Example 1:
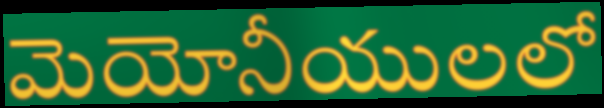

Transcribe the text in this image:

మెయోనీయులలో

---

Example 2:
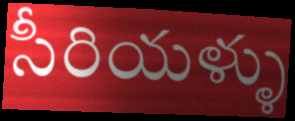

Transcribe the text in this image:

సీరియళ్ళు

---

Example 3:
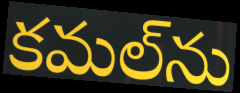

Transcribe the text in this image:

కమల్‌ను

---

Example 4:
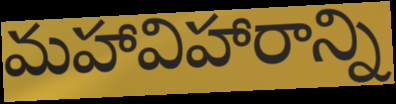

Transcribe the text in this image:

మహావిహారాన్ని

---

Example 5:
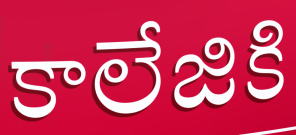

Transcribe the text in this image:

కాలేజికి